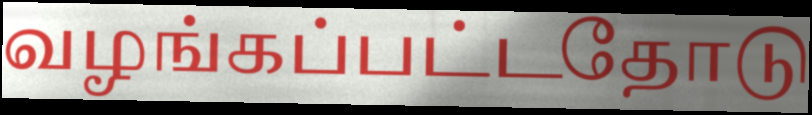
வழங்கப்பட்டதோடு